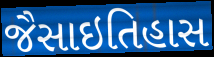
જૈસાઇતિહાસ